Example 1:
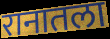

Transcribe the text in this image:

रानातला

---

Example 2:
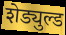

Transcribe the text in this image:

शेड्युल्ड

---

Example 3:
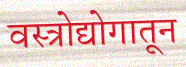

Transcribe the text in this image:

वस्त्रोद्योगातून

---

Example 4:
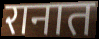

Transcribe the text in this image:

रानात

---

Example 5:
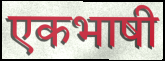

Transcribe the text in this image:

एकभाषी